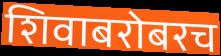
शिवाबरोबरच